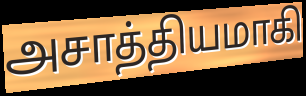
அசாத்தியமாகி